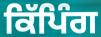
ਕਿੱਪਿੰਗ